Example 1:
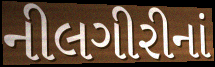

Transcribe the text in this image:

નીલગીરીનાં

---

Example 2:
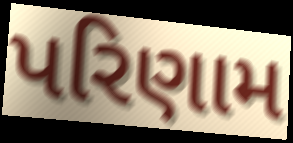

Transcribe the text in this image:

પરિણામ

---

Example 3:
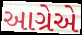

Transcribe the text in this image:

આગ્રેએ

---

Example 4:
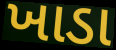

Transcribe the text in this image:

ખાડા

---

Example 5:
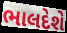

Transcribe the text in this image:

ભાલદેશે